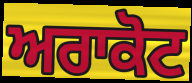
ਅਰਾਕੋਟ